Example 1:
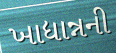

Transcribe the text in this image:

ખાદ્યાન્નની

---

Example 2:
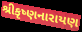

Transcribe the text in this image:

શ્રીકૃષ્ણનારાયણ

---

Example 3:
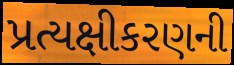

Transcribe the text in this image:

પ્રત્યક્ષીકરણની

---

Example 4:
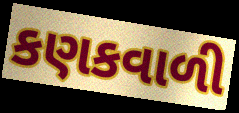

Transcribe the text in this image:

કણકવાળી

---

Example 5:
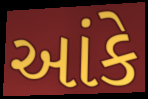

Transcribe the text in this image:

આંકે